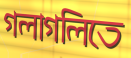
গলাগলিতে